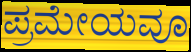
ಪ್ರಮೇಯವೂ